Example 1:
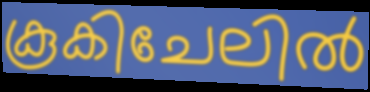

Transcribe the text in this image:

കൂകിചേലിൽ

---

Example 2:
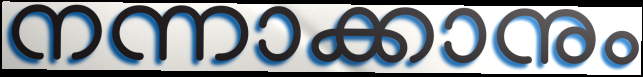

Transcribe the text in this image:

നന്നാക്കാനും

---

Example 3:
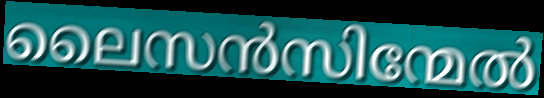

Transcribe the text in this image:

ലൈസൻസിന്മേൽ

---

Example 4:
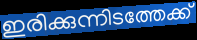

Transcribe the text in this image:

ഇരിക്കുന്നിടത്തേക്ക്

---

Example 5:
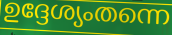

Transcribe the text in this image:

ഉദ്ദേശ്യംതന്നെ